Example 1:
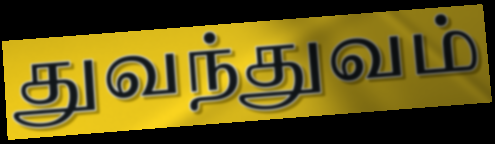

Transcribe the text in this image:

துவந்துவம்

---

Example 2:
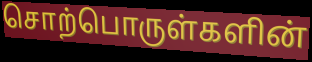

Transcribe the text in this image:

சொற்பொருள்களின்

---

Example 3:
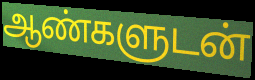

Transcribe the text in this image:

ஆண்களுடன்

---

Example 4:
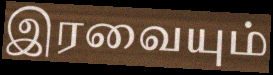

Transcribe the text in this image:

இரவையும்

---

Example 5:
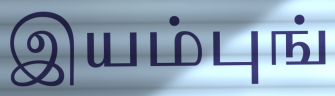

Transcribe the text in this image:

இயம்புங்